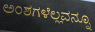
ಅಂಶಗಳೆಲ್ಲವನ್ನೂ